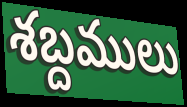
శబ్దములు